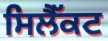
ਸਿਲੈੱਕਟ